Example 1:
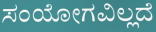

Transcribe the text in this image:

ಸಂಯೋಗವಿಲ್ಲದೆ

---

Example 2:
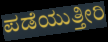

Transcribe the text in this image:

ಪಡೆಯುತ್ತೀರಿ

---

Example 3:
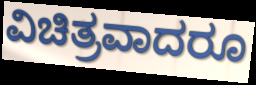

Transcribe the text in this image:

ವಿಚಿತ್ರವಾದರೂ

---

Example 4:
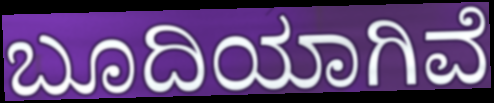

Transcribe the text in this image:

ಬೂದಿಯಾಗಿವೆ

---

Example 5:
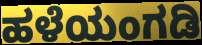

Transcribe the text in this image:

ಹಳೆಯಂಗಡಿ